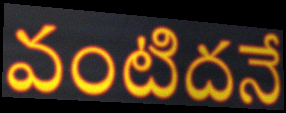
వంటిదనే